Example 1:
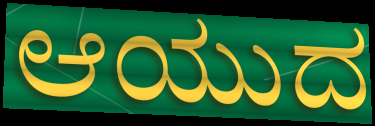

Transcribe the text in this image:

ಆಯುದ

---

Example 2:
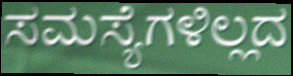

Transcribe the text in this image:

ಸಮಸ್ಯೆಗಳಿಲ್ಲದ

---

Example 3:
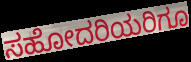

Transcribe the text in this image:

ಸಹೋದರಿಯರಿಗೂ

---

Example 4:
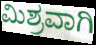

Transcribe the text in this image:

ಮಿಶ್ರವಾಗಿ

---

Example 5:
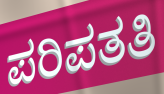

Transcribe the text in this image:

ಪರಿಪತತಿ